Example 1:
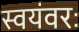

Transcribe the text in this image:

स्वयंवरः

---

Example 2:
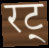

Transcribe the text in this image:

रट्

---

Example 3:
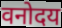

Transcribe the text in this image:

वनोदय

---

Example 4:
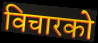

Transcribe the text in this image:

विचारको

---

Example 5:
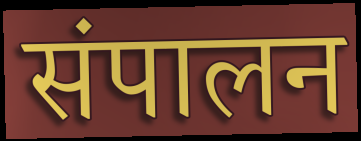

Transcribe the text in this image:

संपालन